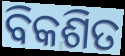
ବିକଶିତ